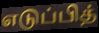
எடுப்பித்